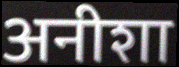
अनीशा